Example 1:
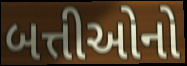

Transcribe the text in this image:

બત્તીઓનો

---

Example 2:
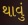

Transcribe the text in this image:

થાવું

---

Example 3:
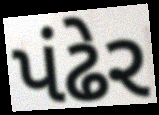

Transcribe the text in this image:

પંઢેર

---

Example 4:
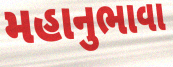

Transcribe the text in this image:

મહાનુભાવા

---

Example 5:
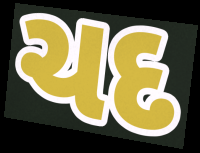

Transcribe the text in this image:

ચદ